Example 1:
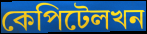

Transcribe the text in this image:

কেপিটেলখন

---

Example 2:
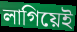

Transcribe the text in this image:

লাগিয়েই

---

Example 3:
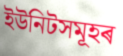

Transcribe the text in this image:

ইউনিটসমূহৰ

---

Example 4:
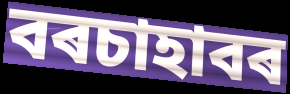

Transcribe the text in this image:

বৰচাহাবৰ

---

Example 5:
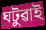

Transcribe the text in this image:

ঘটুৱাই